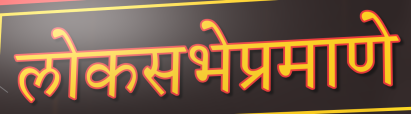
लोकसभेप्रमाणे